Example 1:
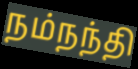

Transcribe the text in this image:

நம்நந்தி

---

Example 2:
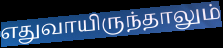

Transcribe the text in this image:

எதுவாயிருந்தாலும்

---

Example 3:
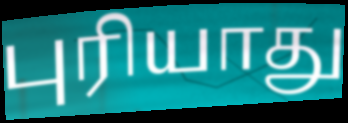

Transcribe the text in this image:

புரியாது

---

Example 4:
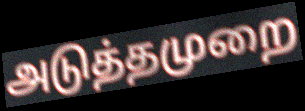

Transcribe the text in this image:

அடுத்தமுறை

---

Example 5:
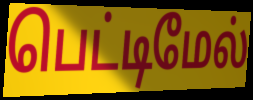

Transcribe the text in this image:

பெட்டிமேல்